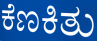
ಕೆಣಕಿತು